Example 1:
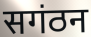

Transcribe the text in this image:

सगंठन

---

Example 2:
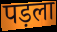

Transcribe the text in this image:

पड़ला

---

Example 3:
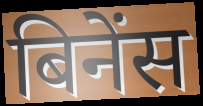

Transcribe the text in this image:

बिनेंस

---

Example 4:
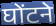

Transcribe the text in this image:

घोंटने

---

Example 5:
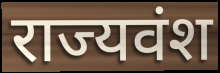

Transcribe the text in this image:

राज्यवंश